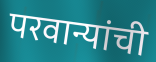
परवान्यांची